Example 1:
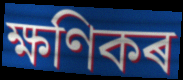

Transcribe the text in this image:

ক্ষণিকৰ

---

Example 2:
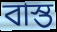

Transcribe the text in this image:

বাস্ত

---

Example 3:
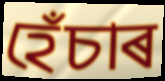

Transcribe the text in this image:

হেঁচাৰ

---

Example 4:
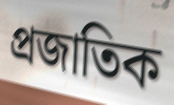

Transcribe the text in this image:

প্ৰজাতিক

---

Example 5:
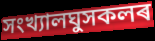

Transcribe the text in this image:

সংখ্যালঘুসকলৰ